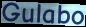
Gulabo